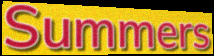
Summers